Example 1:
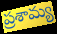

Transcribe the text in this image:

ప్రశామ్య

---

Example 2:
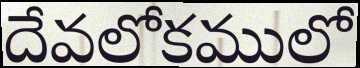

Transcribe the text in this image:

దేవలోకములో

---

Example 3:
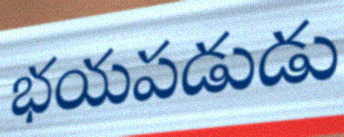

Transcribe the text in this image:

భయపడుడు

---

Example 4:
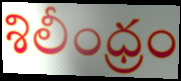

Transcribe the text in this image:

శిలీంధ్రం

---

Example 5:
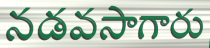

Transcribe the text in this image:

నడవసాగారు